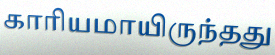
காரியமாயிருந்தது